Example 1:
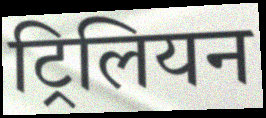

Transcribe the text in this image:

ट्रिलियन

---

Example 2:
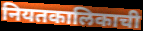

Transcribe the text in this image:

नियतकालिकाची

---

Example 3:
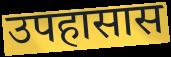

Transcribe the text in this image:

उपहासास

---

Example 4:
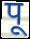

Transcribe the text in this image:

पू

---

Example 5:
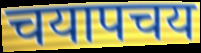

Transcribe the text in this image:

चयापचय